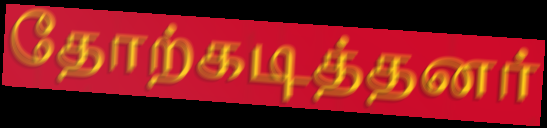
தோற்கடித்தனர்